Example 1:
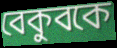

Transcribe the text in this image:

বেকুবকে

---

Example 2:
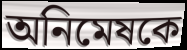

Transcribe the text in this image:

অনিমেষকে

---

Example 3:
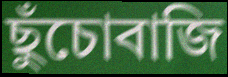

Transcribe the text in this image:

ছুঁচোবাজি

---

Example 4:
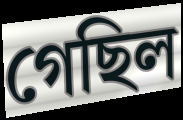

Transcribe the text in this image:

গেছিল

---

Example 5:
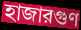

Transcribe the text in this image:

হাজারগুণ